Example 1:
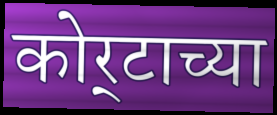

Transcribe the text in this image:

कोर्टाच्या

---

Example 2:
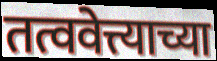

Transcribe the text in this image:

तत्ववेत्त्याच्या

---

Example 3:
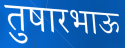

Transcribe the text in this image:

तुषारभाऊ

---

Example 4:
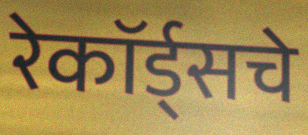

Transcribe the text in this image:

रेकॉर्ड्सचे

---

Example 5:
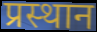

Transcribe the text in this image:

प्रस्थान